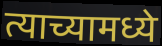
त्याच्यामध्ये